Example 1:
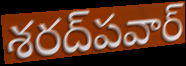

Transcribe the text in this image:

శరద్‌పవార్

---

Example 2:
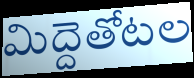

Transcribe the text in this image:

మిద్దెతోటల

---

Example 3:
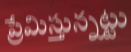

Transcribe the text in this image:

ప్రేమిస్తున్నట్టు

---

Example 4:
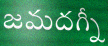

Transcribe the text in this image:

జమదగ్నీ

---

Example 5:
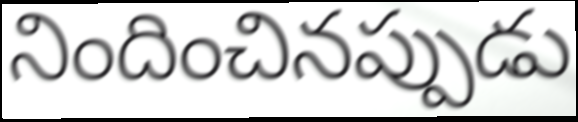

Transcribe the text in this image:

నిందించినప్పుడు